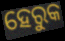
ହେରୁକ